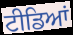
ਟੀਡਿਆਂ